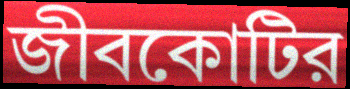
জীবকোটির